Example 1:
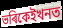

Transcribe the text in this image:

ভৰিকেইখনত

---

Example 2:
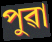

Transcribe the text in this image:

পুৱা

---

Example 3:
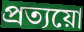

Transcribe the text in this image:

প্ৰত্যয়ো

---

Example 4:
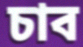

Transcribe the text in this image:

চাব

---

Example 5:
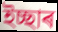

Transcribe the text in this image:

ইচ্ছাৰ